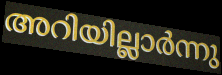
അറിയില്ലാർന്നു